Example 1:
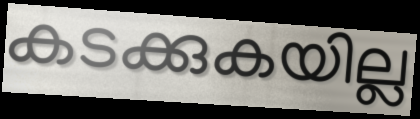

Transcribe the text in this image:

കടക്കുകയില്ല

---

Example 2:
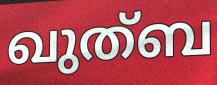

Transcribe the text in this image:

ഖുത്ബ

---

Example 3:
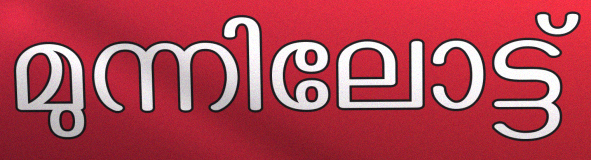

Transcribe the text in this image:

മുന്നിലോട്ട്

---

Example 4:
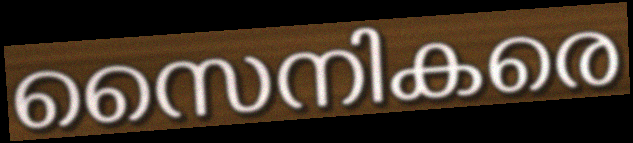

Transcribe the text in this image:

സൈനികരെ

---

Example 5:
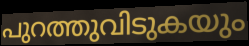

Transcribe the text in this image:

പുറത്തുവിടുകയും